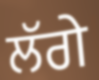
ਲੱਗੇ